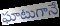
ఘాటుగానే